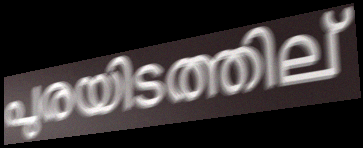
പുരയിടത്തില്